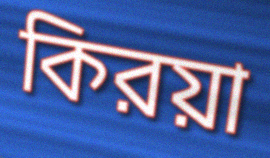
কিরয়া